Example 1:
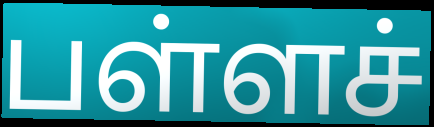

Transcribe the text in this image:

பள்ளச்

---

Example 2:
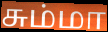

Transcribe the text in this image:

சும்மா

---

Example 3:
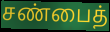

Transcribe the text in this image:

சண்பைத்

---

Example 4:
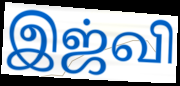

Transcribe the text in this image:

இஜ்வி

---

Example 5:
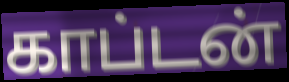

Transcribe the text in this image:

காப்டன்